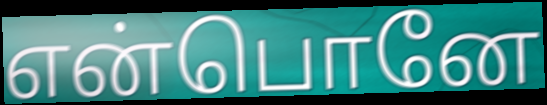
என்பொனே